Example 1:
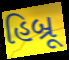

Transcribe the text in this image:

હિબ્રૂ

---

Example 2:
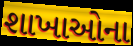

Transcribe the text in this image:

શાખાઓના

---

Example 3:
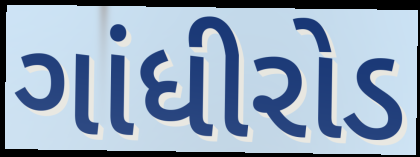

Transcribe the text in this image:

ગાંધીરોડ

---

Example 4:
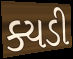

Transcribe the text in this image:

ક્યડી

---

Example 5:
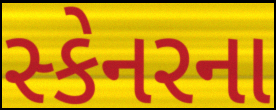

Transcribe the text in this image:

સ્કેનરના